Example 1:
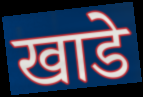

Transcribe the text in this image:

खाडे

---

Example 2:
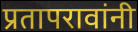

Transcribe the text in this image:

प्रतापरावांनी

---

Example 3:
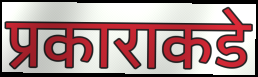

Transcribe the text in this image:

प्रकाराकडे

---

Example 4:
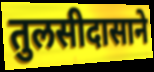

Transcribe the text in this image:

तुलसीदासाने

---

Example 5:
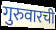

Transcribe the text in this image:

गुरुवारची